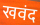
खवंद